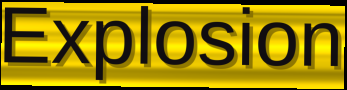
Explosion